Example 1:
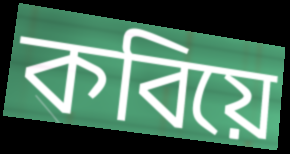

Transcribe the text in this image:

কবিয়ে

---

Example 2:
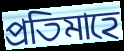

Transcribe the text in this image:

প্ৰতিমাহে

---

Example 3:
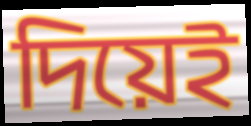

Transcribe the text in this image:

দিয়েই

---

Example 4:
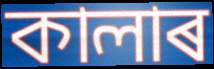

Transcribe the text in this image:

কালাৰ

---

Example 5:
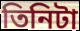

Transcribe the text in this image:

তিনিটা